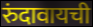
रुंदावायची